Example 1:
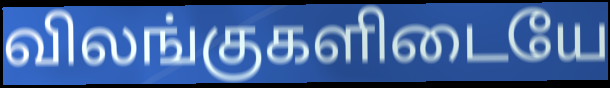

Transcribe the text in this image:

விலங்குகளிடையே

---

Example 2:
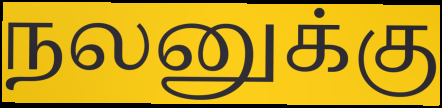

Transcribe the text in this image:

நலனுக்கு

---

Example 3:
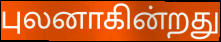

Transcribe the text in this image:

புலனாகின்றது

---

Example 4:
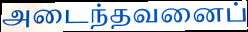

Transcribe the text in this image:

அடைந்தவனைப்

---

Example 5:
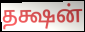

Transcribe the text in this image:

தக்ஷன்